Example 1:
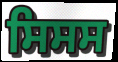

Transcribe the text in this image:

ਸਿਸਸ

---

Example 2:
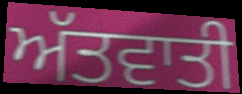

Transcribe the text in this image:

ਅੱਤਵਾਤੀ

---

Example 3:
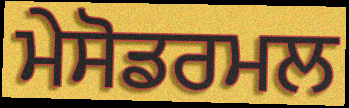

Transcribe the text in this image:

ਮੇਸੋਡਰਮਲ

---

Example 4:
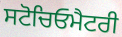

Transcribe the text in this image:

ਸਟੋਚਿਓਮੈਟਰੀ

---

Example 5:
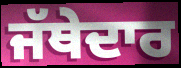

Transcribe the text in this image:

ਜੱਥੇਦਾਰ